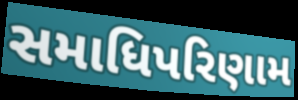
સમાધિપરિણામ